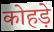
कोहड़े